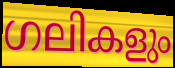
ഗലികളും